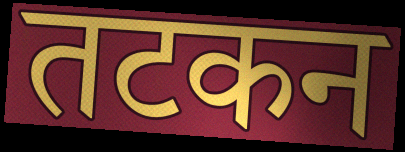
तटकन